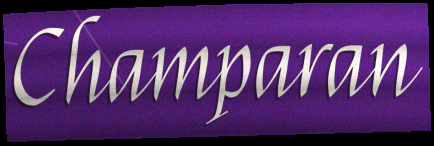
Champaran